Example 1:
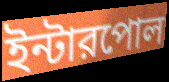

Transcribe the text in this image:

ইন্টারপোল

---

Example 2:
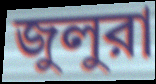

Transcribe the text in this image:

জুলুরা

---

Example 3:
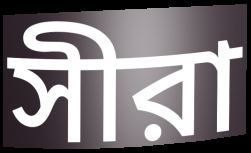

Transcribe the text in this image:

সীরা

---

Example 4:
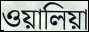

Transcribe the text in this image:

ওয়ালিয়া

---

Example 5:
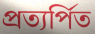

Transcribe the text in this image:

প্রত্যর্পিত